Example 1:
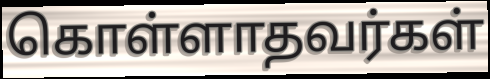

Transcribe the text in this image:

கொள்ளாதவர்கள்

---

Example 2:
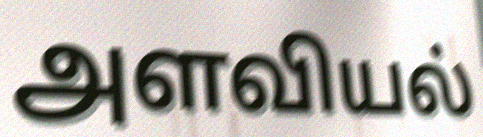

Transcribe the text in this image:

அளவியல்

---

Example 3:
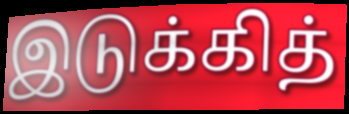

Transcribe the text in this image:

இடுக்கித்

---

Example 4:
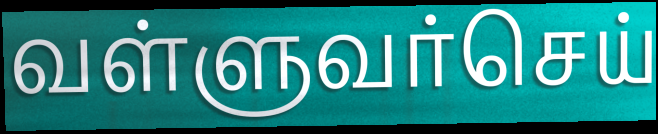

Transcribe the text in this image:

வள்ளுவர்செய்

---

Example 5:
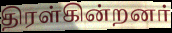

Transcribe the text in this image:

திரள்கின்றனர்